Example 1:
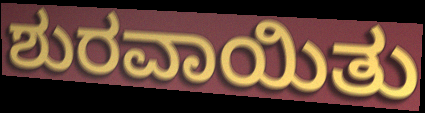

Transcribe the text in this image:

ಶುರವಾಯಿತು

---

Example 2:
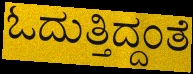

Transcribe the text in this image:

ಓದುತ್ತಿದ್ದಂತೆ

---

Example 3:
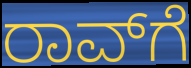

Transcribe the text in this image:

ರಾವ್‌ಗೆ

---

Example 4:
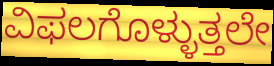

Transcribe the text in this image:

ವಿಫಲಗೊಳ್ಳುತ್ತಲೇ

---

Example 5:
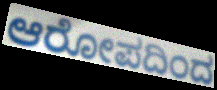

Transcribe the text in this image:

ಆರೋಪದಿಂದ